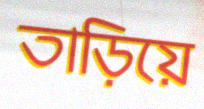
তাড়িয়ে